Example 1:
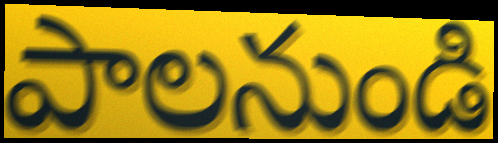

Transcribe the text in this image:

పాలనుండి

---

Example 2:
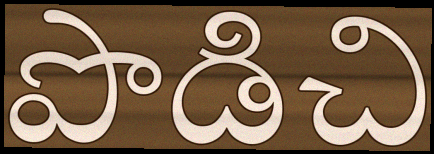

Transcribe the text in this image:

పొడిచి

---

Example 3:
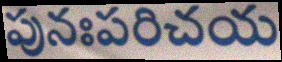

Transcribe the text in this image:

పునఃపరిచయ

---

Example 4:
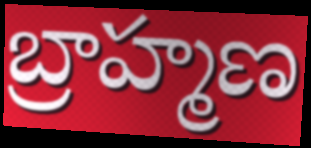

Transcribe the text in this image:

బ్రాహ్మణ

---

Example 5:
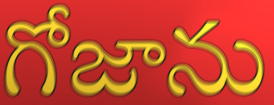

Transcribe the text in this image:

గోజాను